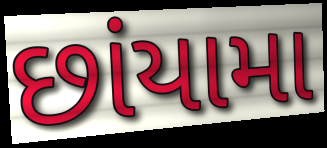
છાંયામા